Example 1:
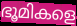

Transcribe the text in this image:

ഭൂമികളെ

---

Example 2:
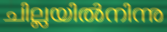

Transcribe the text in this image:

ചില്ലയിൽനിന്നു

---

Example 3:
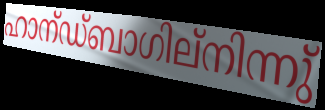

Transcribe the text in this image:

ഹാന്ഡ്ബാഗില്നിന്നു്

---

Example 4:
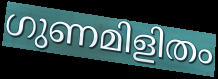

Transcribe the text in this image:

ഗുണമിളിതം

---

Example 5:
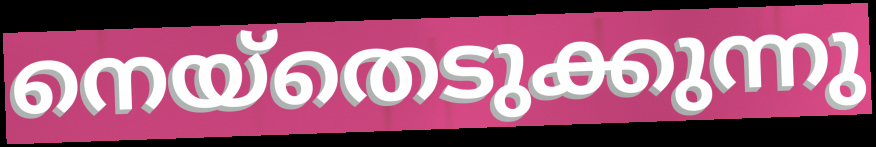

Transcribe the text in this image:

നെയ്തെടുക്കുന്നു